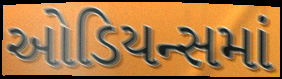
ઓડિયન્સમાં